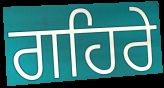
ਗਹਿਰੇ